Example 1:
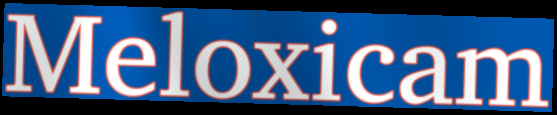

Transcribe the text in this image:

Meloxicam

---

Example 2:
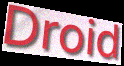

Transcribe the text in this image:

Droid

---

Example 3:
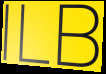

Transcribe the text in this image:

ILB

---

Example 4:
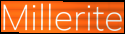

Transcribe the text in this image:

Millerite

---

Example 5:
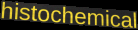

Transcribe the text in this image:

histochemical